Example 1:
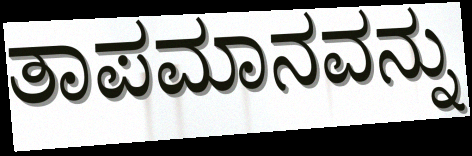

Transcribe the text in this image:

ತಾಪಮಾನವನ್ನು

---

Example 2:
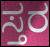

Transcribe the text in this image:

ಸ್ತರ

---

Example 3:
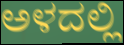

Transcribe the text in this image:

ಅಳದಲ್ಲಿ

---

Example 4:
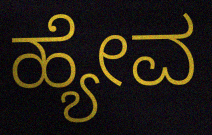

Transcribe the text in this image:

ಹ್ಯೇವ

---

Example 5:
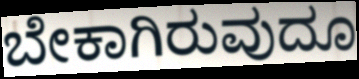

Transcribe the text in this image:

ಬೇಕಾಗಿರುವುದೂ